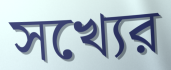
সখ্যের